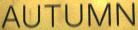
AUTUMN